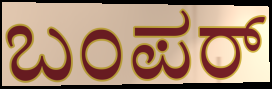
ಬಂಪರ್